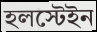
হলস্টেইন